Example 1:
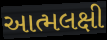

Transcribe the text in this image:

આત્મલક્ષી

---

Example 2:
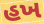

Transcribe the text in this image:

હખ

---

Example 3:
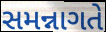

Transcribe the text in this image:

સમન્નાગતે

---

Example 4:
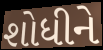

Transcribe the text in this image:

શોધીને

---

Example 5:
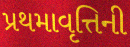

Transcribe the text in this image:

પ્રથમાવૃત્તિની